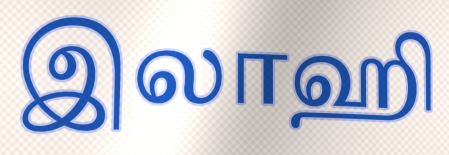
இலாஹி